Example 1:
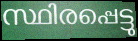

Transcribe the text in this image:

സ്ഥിരപ്പെട്ടു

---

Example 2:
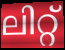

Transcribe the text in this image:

ലിറ്റ്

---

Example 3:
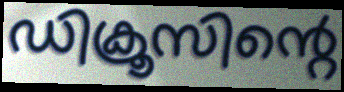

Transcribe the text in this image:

ഡിക്രൂസിന്റെ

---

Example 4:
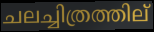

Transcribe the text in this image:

ചലച്ചിത്രത്തില്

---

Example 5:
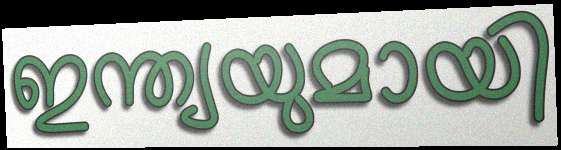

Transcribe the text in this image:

ഇന്ത്യയുമായി